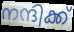
നന്ദിക്ക്